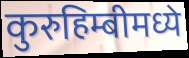
कुरुहिम्बीमध्ये